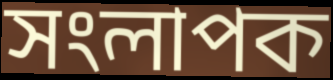
সংলাপক